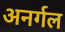
अनर्गल